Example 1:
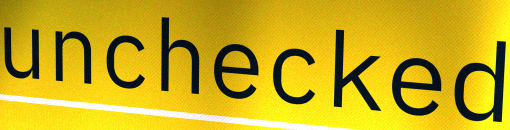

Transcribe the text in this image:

unchecked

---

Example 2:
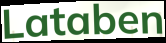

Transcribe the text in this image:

Lataben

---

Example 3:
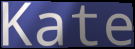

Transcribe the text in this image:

Kate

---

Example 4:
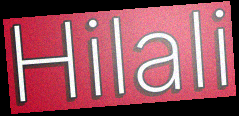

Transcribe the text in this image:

Hilali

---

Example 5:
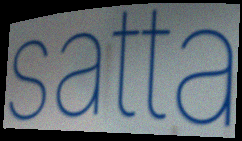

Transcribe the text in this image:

satta